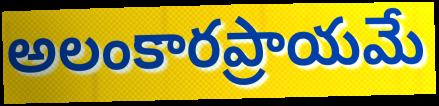
అలంకారప్రాయమే